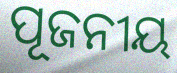
ପୂଜନୀୟ